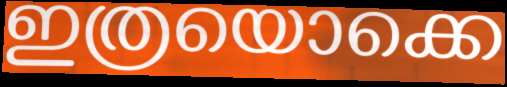
ഇത്രയൊക്കെ